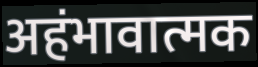
अहंभावात्मक